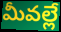
మీవల్లే